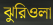
ঝুরিওলা